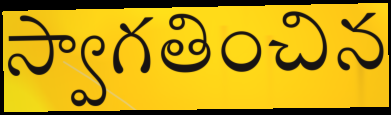
స్వాగతించిన